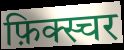
फ़िक्स्चर